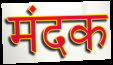
मंदक